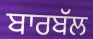
ਬਾਰਬੱਲ